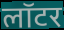
लॉटर